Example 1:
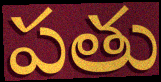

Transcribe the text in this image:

పతు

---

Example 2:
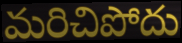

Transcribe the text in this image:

మరిచిపోదు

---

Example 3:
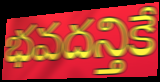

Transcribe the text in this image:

భవదన్తికే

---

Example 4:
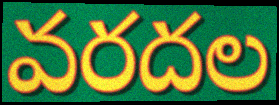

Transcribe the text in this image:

వరదల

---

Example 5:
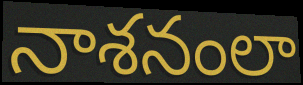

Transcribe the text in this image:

నాశనంలా